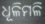
ଧୂଳିମଳି